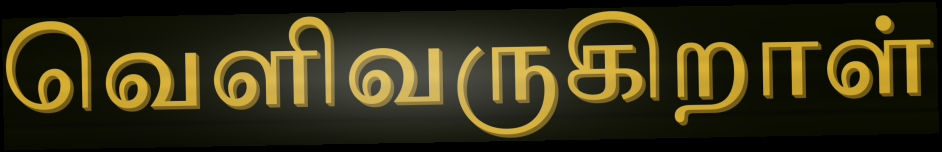
வெளிவருகிறாள்